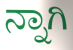
ನ್ನಾಗಿ